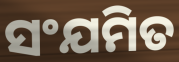
ସଂଯମିତ